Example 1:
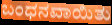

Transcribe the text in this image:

ಬಂಧನವಾಯಿತು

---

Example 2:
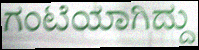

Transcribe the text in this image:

ಗಂಟೆಯಾಗಿದ್ದು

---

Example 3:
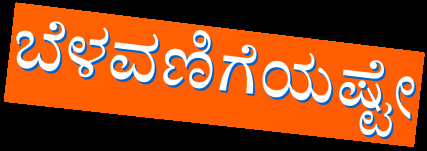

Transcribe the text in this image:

ಬೆಳವಣಿಗೆಯಷ್ಟೇ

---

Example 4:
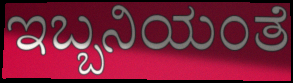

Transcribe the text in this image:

ಇಬ್ಬನಿಯಂತೆ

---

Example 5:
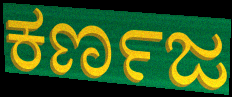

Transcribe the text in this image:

ಕರ್ಣಜ